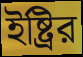
ইষ্ট্রির